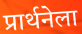
प्रार्थनेला